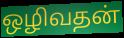
ஒழிவதன்